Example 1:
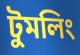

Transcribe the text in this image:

টুমলিং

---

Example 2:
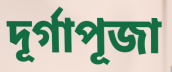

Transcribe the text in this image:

দূর্গাপূজা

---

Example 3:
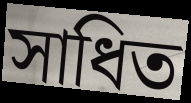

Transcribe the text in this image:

সাধিত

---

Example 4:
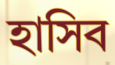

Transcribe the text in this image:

হাসিব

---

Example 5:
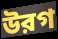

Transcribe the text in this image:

উরগ